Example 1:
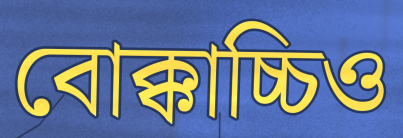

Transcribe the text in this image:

বোক্কাচ্চিও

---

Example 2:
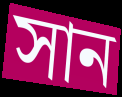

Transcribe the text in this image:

সান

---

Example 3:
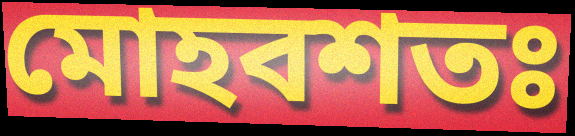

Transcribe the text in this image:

মোহবশতঃ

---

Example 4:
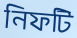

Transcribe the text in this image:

নিফটি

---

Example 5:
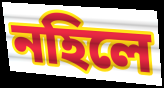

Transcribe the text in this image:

নহিলে